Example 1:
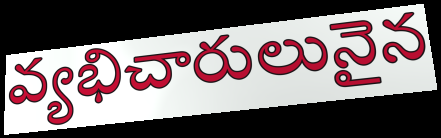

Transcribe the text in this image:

వ్యభిచారులునైన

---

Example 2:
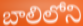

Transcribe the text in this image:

బాలిలోని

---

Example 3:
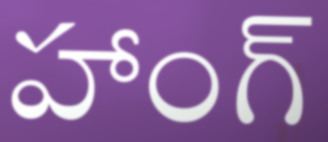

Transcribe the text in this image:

హాంగ్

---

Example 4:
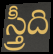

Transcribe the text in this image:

స్త్రీది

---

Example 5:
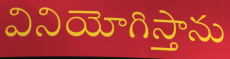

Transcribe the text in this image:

వినియోగిస్తాను